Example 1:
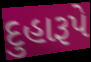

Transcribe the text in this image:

દુહારૂપે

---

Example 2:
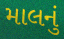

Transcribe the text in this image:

માલનું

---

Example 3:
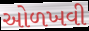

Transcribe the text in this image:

ઓળખવી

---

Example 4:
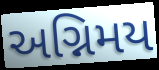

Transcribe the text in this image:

અગ્નિમય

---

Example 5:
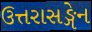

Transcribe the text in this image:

ઉત્તરાસઙ્ગેન